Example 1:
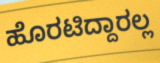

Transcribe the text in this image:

ಹೊರಟಿದ್ದಾರಲ್ಲ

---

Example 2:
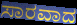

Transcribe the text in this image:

ಸಾರವಾದ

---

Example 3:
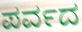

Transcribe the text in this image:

ಪರ್ವದ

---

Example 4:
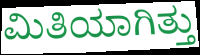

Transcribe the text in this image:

ಮಿತಿಯಾಗಿತ್ತು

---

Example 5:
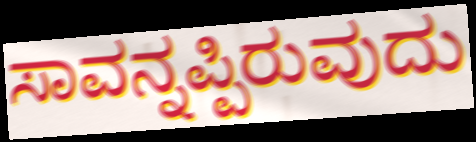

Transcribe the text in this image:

ಸಾವನ್ನಪ್ಪಿರುವುದು